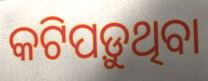
କଟିପଡ଼ୁଥିବା